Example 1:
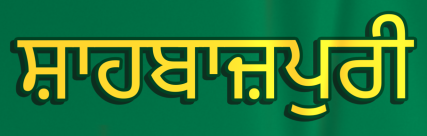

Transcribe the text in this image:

ਸ਼ਾਹਬਾਜ਼ਪੁਰੀ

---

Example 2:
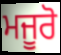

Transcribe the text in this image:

ਮਜੂਰੋ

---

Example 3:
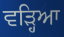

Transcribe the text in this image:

ਵੜ੍ਹਿਆ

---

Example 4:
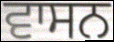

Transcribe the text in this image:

ਵਾਸਨ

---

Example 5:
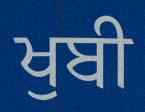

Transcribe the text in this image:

ਖੁਬੀ